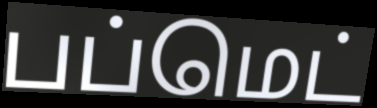
பப்மெட்